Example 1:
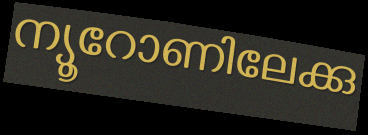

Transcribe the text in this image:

ന്യൂറോണിലേക്കു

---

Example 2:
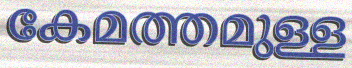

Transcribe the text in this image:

കേമത്തമുള്ള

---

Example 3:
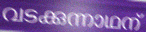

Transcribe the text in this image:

വടക്കുന്നാഥന്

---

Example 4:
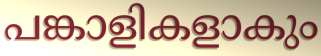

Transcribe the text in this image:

പങ്കാളികളാകും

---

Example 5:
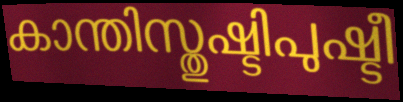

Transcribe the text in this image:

കാന്തിസ്തുഷ്ടിപുഷ്ടീ